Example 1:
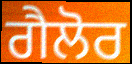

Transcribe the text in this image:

ਗੈਲੋਰ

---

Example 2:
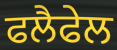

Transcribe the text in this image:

ਫਲੈਫੇਲ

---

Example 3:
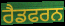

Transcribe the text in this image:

ਰੈਡਫਰਨ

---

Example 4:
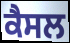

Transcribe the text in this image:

ਕੈਸਲ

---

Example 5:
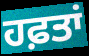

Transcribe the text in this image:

ਹਫ਼ਤਾਂ